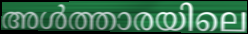
അൾത്താരയിലെ